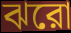
ঝরো